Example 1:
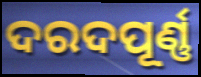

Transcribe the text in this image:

ଦରଦପୂର୍ଣ୍ଣ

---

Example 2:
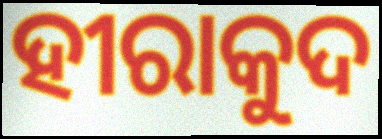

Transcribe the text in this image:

ହୀରାକୁଦ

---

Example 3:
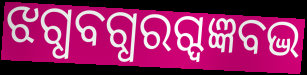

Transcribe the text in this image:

ଝଗ୍ଧବଗ୍ଧରଗ୍ଦଜ୍ଞବଦ୍ଭ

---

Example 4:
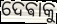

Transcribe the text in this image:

ଦେଵାକୁ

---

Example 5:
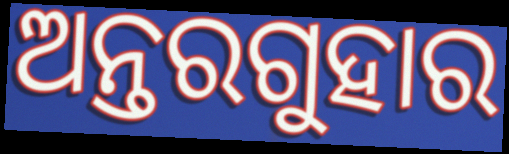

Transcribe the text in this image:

ଅନ୍ତରଗୁହାର